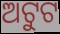
ଅଟୁଟ